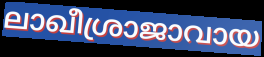
ലാഖീശ്രാജാവായ